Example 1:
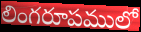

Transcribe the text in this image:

లింగరూపములో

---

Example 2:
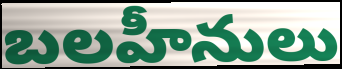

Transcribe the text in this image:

బలహీనులు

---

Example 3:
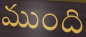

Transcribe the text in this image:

ముంది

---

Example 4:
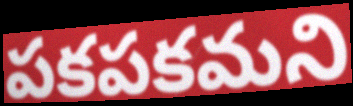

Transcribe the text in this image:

పకపకమని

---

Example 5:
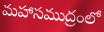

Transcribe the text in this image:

మహాసముద్రంలో